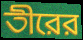
তীরের